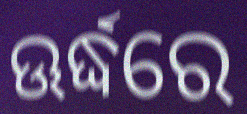
ଊର୍ଦ୍ଧରେ